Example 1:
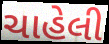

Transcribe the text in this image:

ચાહેલી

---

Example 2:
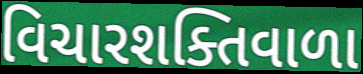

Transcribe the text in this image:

વિચારશક્તિવાળા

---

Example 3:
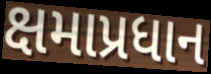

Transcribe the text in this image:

ક્ષમાપ્રધાન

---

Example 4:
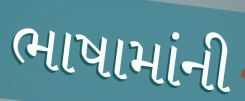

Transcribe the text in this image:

ભાષામાંની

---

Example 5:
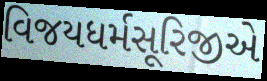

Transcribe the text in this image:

વિજયધર્મસૂરિજીએ